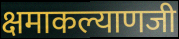
क्षमाकल्याणजी